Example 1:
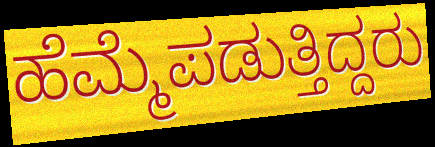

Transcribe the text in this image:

ಹೆಮ್ಮೆಪಡುತ್ತಿದ್ದರು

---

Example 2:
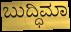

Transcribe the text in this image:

ಬುದ್ಧಿಮಾ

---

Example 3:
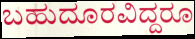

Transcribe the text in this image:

ಬಹುದೂರವಿದ್ದರೂ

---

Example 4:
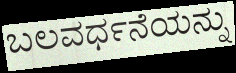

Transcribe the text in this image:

ಬಲವರ್ಧನೆಯನ್ನು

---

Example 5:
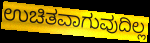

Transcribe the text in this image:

ಉಚಿತವಾಗುವುದಿಲ್ಲ